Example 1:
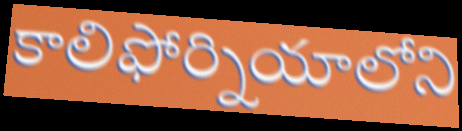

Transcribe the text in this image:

కాలిఫోర్నియాలోని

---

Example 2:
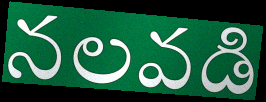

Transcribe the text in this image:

నలవడి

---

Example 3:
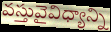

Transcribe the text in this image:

వస్తువైవిధ్యాన్ని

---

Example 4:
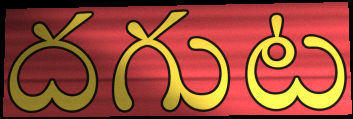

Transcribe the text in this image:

దగుట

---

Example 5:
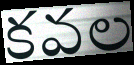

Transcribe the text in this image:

కవల